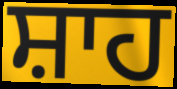
ਸ਼ਾਹ